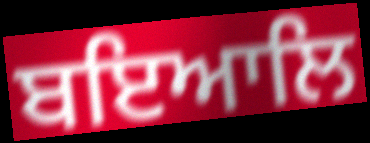
ਬਇਆਲਿ